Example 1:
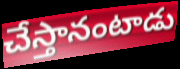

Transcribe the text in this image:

చేస్తానంటాడు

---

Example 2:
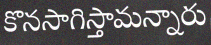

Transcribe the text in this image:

కొనసాగిస్తామన్నారు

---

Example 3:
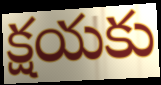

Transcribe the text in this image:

క్షయకు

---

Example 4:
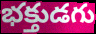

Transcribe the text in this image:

భక్తుడగు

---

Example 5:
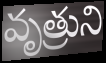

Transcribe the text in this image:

వృత్రుని